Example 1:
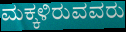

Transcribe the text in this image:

ಮಕ್ಕಳಿರುವವರು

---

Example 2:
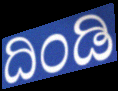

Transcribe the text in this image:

ದಿಂಡಿ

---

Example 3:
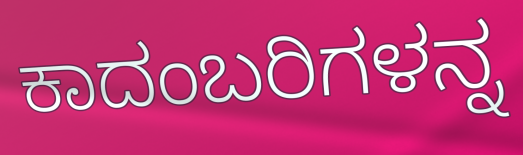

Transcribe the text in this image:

ಕಾದಂಬರಿಗಳನ್ನ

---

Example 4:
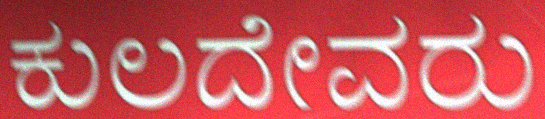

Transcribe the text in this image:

ಕುಲದೇವರು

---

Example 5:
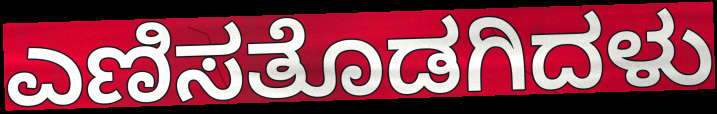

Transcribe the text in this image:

ಎಣಿಸತೊಡಗಿದಳು